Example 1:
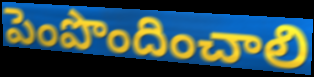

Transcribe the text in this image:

పెంపొందించాలి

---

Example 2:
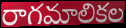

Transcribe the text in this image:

రాగమాలికల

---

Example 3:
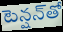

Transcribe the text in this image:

టెన్షన్‌తో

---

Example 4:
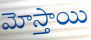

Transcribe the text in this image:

మోస్తాయి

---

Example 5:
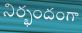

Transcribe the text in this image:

నిర్భందంగా